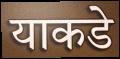
याकडे